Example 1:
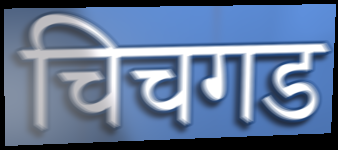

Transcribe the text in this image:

चिचगड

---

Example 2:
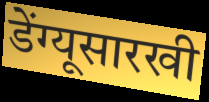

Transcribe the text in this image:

डेंग्यूसारखी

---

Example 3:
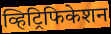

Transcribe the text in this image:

व्हिट्रिफिकेशन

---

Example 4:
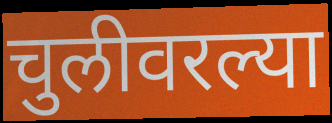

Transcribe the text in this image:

चुलीवरल्या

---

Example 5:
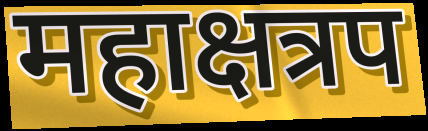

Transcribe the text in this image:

महाक्षत्रप